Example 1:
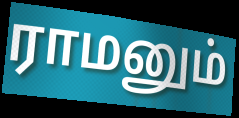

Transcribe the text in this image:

ராமனும்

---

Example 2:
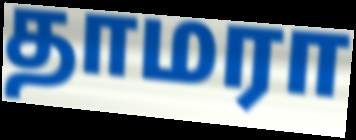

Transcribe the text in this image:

தாமரா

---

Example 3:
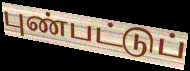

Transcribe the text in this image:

புண்பட்டுப்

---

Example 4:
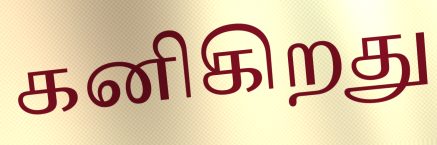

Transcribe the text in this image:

கனிகிறது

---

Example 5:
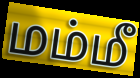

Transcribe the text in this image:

மம்மீ